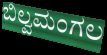
ಬಿಲ್ವಮಂಗಲ